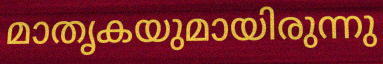
മാതൃകയുമായിരുന്നു